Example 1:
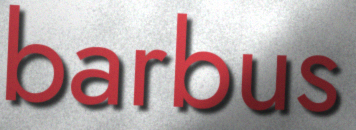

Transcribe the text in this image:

barbus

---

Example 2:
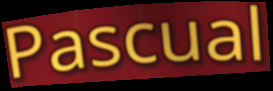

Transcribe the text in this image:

Pascual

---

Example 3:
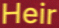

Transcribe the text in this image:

Heir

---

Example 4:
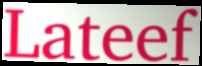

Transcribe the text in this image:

Lateef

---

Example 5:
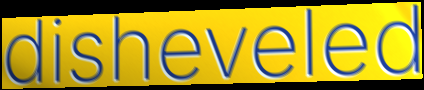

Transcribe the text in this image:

disheveled